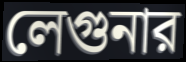
লেগুনার